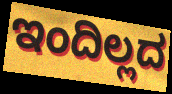
ಇಂದಿಲ್ಲದ